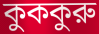
কুককুরু